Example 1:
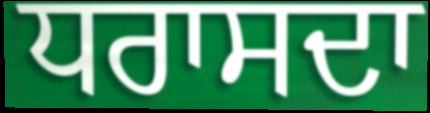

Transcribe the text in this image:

ਧਰਾਸਦਾ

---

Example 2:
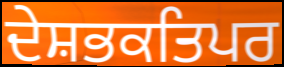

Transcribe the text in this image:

ਦੇਸ਼ਭਕਤਿਪਰ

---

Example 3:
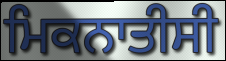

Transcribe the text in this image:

ਮਿਕਨਾਤੀਸੀ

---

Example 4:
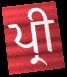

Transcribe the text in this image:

ਪ੍ਰੀ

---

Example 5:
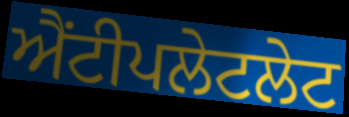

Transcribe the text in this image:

ਐਂਟੀਪਲੇਟਲੇਟ